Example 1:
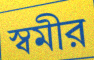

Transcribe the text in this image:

স্বমীর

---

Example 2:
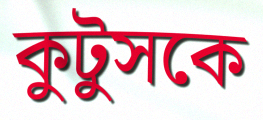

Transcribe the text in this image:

কুটুসকে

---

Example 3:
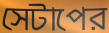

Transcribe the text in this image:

সেটাপের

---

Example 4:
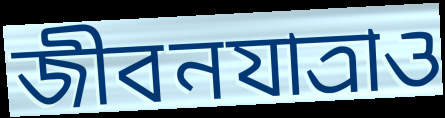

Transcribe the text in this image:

জীবনযাত্রাও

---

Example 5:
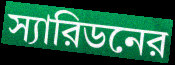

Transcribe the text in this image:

স্যারিডনের